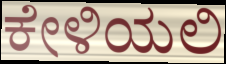
ಕೇಳಿಯಲಿ